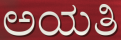
ಅಯತಿ